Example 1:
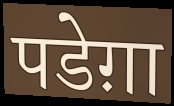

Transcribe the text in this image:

पडेग़ा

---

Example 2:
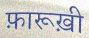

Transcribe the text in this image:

फ़ारूख़ी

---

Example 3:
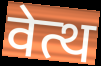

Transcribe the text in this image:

वेत्थ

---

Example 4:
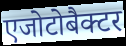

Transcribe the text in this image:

एजोटोबैक्टर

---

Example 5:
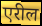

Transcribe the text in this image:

एरील